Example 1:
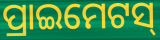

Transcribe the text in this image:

ପ୍ରାଇମେଟସ୍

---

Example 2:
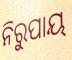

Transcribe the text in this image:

ନିରୁପାୟ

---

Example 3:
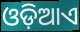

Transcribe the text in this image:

ଓଡ଼ିଆଏ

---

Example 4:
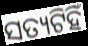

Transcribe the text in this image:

ସତ୍ୟଟିହିଁ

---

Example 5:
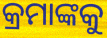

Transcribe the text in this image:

କ୍ରମାଙ୍କକୁ